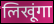
लिखूंगा